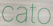
cato